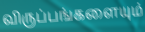
விருப்பங்களையும்